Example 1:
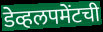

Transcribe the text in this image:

डेव्हलपमेंटची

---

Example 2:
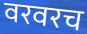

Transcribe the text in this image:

वरवरच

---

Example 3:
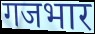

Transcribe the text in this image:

गजभार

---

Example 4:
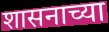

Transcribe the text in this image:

शासनाच्या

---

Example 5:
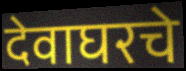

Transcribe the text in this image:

देवाघरचे